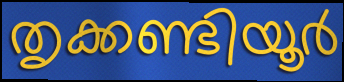
തൃക്കണ്ടിയൂർ